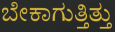
ಬೇಕಾಗುತ್ತಿತ್ತು